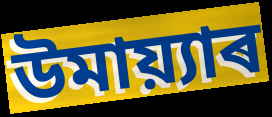
উমায়্যাৰ